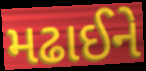
મઢાઈને